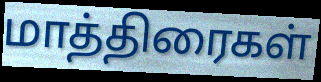
மாத்திரைகள்